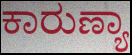
ಕಾರುಣ್ಯಾ